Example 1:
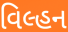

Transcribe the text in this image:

વિલ્હન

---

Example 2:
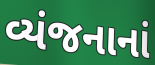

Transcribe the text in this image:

વ્યંજનાનાં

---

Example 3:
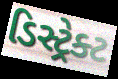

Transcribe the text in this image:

ડિસ્ટ્રેક્ટ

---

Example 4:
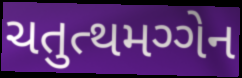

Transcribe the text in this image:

ચતુત્થમગ્ગેન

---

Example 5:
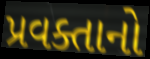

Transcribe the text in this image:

પ્રવક્તાનો